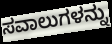
ಸವಾಲುಗಳನ್ನು